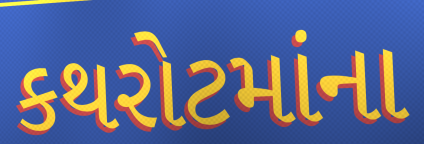
કથરોટમાંના